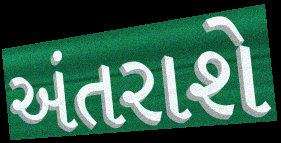
અંતરાશે